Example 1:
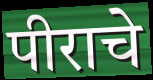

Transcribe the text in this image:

पीराचे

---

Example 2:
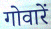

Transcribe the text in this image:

गोवारें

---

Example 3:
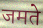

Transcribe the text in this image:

जमते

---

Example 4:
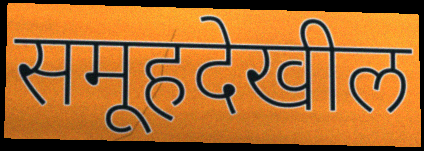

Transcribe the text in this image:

समूहदेखील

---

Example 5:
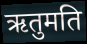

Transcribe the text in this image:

ऋतुमति